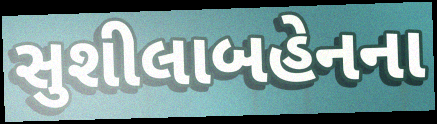
સુશીલાબહેનના